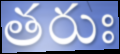
తరుః